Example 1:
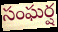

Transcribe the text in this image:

సంఘర్ష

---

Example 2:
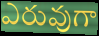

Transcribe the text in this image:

ఎరువుగా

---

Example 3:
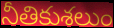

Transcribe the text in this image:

నీతికుశలుం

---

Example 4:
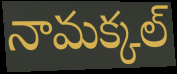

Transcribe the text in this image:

నామక్కల్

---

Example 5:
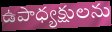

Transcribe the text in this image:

ఉపాధ్యక్షులను